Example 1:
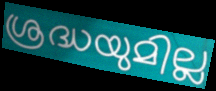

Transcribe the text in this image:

ശ്രദ്ധയുമില്ല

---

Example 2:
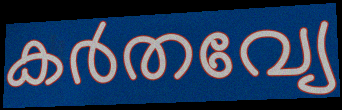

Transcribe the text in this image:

കർതവ്യേ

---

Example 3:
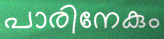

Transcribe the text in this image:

പാരിനേകും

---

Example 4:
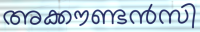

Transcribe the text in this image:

അക്കൗണ്ടൻസി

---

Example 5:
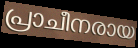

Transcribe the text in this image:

പ്രാചീനരായ